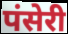
पंसेरी